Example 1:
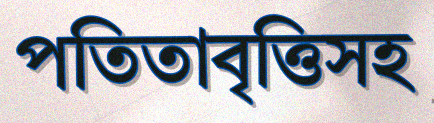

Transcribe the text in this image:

পতিতাবৃত্তিসহ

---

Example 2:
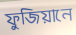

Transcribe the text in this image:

ফুজিয়ানে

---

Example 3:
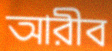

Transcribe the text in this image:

আরীব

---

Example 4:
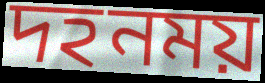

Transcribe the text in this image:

দহনময়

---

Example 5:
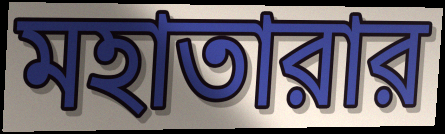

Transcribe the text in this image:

মহাতারার